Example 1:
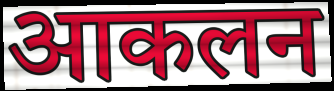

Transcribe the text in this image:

आकलन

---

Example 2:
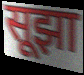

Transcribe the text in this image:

सूझा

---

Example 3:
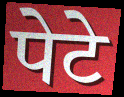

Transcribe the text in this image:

पेटे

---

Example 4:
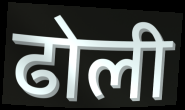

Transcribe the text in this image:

ढोली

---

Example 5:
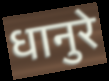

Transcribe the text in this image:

धानुरे